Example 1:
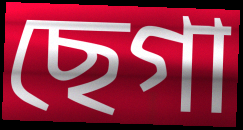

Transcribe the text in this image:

ছেগা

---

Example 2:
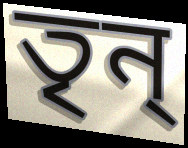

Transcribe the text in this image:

তৃন্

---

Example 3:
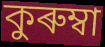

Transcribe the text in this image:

কুৰুম্বা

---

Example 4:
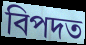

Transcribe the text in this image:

বিপদত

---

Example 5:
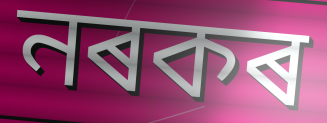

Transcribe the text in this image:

নৰকৰ